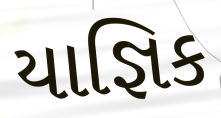
યાજ્ઞિક